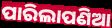
ପାରିଲାପଣିଆ